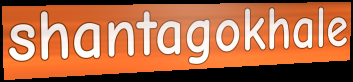
shantagokhale